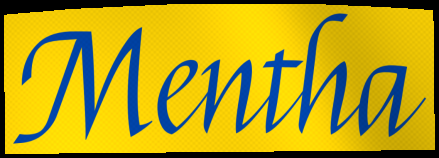
Mentha